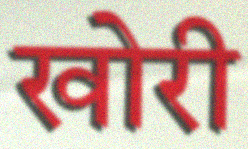
खोरी